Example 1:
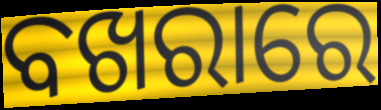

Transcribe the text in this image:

ବଖରାରେ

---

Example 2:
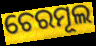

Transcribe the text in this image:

ଚେରମୂଲ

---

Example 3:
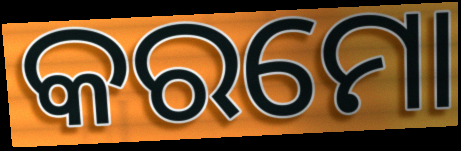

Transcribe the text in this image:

କରମୋ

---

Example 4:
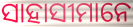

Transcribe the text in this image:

ସାହାସୀମାନେ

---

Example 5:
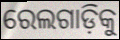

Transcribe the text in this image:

ରେଲଗାଡ଼ିକୁ